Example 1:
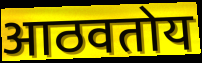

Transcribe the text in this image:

आठवतोय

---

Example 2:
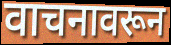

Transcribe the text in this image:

वाचनावरून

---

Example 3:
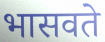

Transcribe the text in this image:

भासवते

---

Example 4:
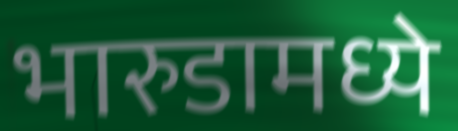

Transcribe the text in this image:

भारुडामध्ये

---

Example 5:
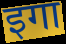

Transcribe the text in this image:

इगा